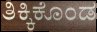
ತಿಕ್ಕಿಕೊಂಡ